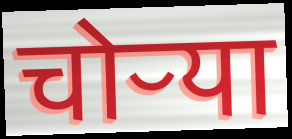
चोऱ्या